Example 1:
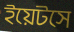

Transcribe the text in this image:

ইয়েটসে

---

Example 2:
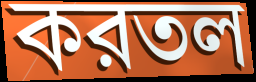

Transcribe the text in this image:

করতল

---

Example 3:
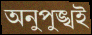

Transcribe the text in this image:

অনুপুঙ্খই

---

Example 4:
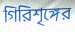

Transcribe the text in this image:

গিরিশৃঙ্গের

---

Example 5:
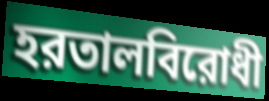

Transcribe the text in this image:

হরতালবিরোধী